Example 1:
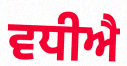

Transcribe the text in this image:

ਵਧੀਐ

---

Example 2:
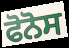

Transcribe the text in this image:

ਫੋਨੋਸ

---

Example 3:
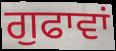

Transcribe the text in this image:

ਗੁਫਾਵਾਂ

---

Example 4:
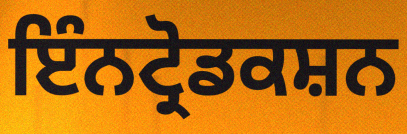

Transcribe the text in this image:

ਇੰਨਟ੍ਰੋਡਕਸ਼ਨ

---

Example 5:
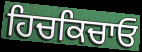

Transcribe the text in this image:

ਹਿਚਕਿਚਾਓ